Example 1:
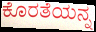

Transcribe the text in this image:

ಕೊರತೆಯನ್ನ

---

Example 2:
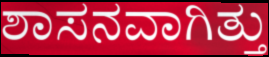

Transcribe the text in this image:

ಶಾಸನವಾಗಿತ್ತು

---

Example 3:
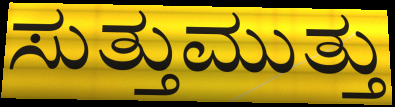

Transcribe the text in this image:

ಸುತ್ತುಮುತ್ತು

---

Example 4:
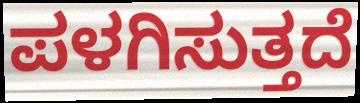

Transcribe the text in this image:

ಪಳಗಿಸುತ್ತದೆ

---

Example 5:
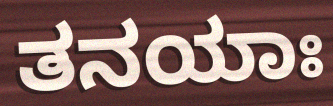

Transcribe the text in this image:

ತನಯಾಃ